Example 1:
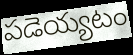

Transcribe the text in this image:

పడెయ్యటం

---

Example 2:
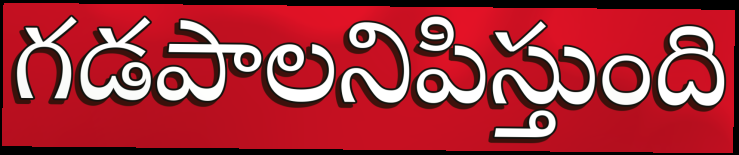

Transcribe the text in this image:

గడపాలనిపిస్తుంది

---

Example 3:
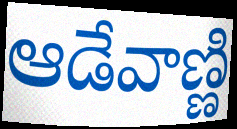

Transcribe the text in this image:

ఆడేవాణ్ణి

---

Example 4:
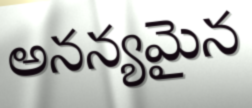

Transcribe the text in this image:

అనన్యమైన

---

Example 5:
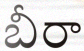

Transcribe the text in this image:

బీరా